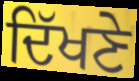
ਦਿੱਖਣੇ